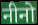
नीनो